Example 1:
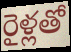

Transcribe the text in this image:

రైళ్లతో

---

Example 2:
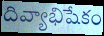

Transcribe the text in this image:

దివ్యాభిషేకం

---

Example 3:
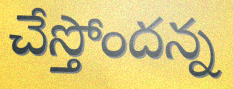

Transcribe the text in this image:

చేస్తోందన్న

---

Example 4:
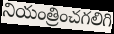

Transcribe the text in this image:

నియంత్రించగలిగి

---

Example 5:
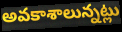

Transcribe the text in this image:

అవకాశాలున్నట్లు